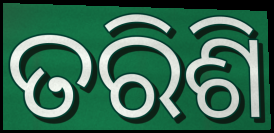
ତରିଶି